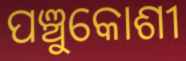
ପଞ୍ଚୁକୋଶୀ